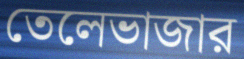
তেলেভাজার